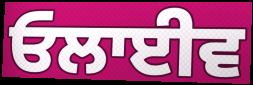
ਓਲਾਈਵ